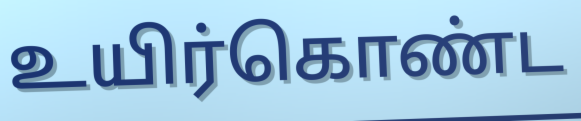
உயிர்கொண்ட